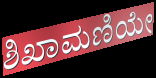
ಶಿಖಾಮಣಿಯೇ